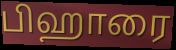
பிஹாரை